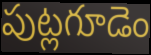
పుట్లగూడెం